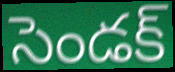
సెండక్